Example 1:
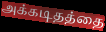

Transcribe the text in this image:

அக்கடிதத்தை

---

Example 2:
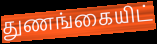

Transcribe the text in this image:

துணங்கையிட்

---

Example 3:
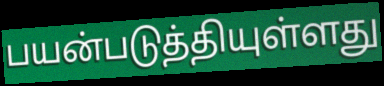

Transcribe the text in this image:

பயன்படுத்தியுள்ளது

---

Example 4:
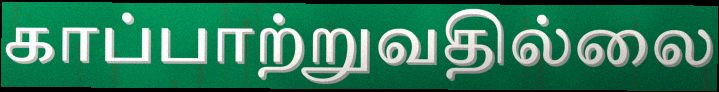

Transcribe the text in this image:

காப்பாற்றுவதில்லை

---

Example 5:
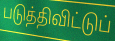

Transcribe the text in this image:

படுத்திவிட்டுப்